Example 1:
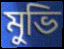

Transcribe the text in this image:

মুভি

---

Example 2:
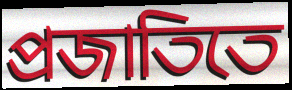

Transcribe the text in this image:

প্রজাতিতে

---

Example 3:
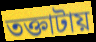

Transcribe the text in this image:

তক্তাটায়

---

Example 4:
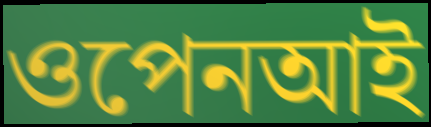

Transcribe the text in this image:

ওপেনআই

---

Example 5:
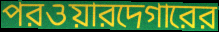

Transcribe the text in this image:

পরওয়ারদেগারের